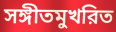
সঙ্গীতমুখরিত